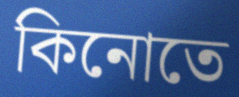
কিনোতে